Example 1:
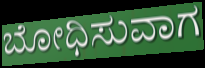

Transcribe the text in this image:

ಬೋಧಿಸುವಾಗ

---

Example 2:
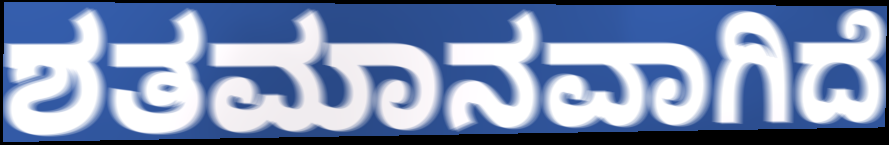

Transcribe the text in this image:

ಶತಮಾನವಾಗಿದೆ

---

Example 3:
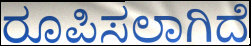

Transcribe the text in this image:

ರೂಪಿಸಲಾಗಿದೆ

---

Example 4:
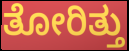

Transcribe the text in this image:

ತೋರಿತ್ತು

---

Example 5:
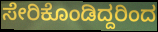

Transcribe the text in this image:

ಸೇರಿಕೊಂಡಿದ್ದರಿಂದ